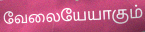
வேலையேயாகும்